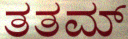
ತತಮ್